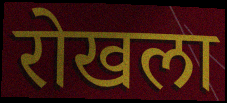
रोखला